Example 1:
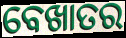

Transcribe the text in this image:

ବେଖାତର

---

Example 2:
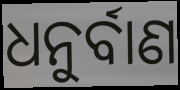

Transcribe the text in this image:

ଧନୁର୍ବାଣ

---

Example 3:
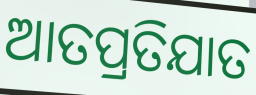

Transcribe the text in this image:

ଆତପ୍ରତିଯାତ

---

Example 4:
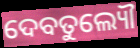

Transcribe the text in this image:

ଦେବତୁଲ୍ୟୌ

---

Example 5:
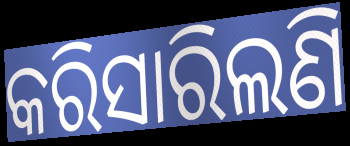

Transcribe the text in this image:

କରିସାରିଲଣି